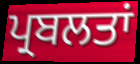
ਪ੍ਰਬਲਤਾਂ